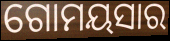
ଗୋମୟସାର